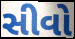
સીવો